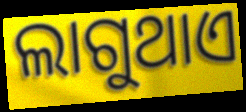
ଲାଗୁଥାଏ